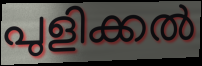
പുളിക്കൽ